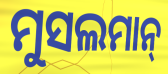
ମୁସଲମାନ୍